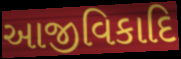
આજીવિકાદિ